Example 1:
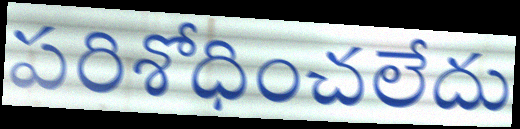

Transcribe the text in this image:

పరిశోధించలేదు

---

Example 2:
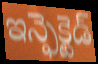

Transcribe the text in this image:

ఇన్ఫెక్టెడ్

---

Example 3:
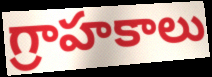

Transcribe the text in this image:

గ్రాహకాలు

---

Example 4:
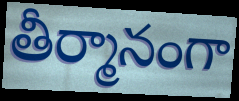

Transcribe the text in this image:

తీర్మానంగా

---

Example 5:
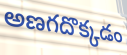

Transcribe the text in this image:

అణగదొక్కడం